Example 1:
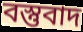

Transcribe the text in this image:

বস্তুবাদ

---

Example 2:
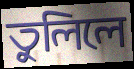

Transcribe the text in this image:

তুলিলে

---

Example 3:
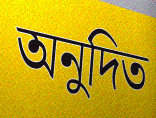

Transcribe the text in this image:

অনুদিত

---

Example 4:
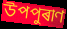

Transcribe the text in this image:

উপপুৰাণ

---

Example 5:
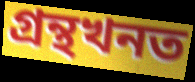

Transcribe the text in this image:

গ্ৰন্থখনত